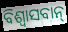
ବିଶ୍ଵାସବାନ୍